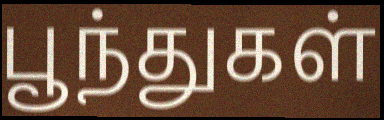
பூந்துகள்